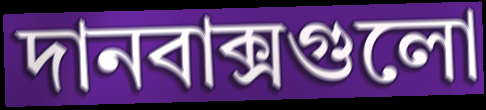
দানবাক্সগুলো